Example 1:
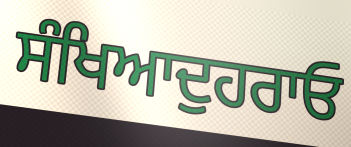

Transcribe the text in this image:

ਸੰਖਿਆਦੁਹਰਾਓ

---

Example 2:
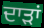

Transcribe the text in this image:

ਦਾੜਾਂ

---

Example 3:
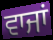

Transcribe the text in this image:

ਵਾਜਾਂ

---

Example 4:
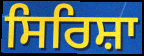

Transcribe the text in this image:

ਸਿਰਿਸ਼ਾ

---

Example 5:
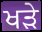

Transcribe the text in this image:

ਖਡ਼ੇ